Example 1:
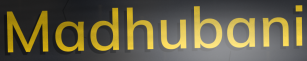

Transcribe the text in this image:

Madhubani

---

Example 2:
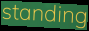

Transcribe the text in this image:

standing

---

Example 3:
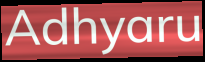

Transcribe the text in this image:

Adhyaru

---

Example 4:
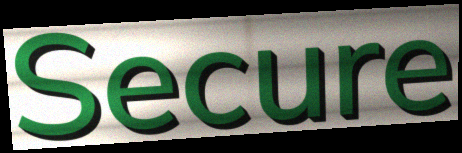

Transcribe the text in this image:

Secure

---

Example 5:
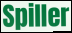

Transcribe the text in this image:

Spiller